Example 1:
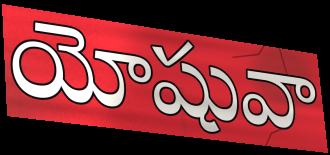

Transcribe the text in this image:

యోషువా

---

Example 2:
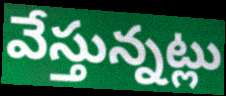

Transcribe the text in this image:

వేస్తున్నట్లు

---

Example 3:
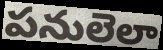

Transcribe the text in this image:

పనులెలా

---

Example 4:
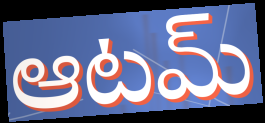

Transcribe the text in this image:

ఆటమ్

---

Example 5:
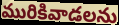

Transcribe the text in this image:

మురికివాడలను